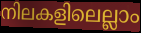
നിലകളിലെല്ലാം